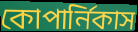
কোপার্নিকাস